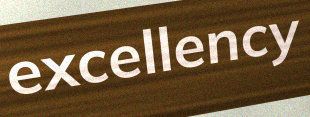
excellency